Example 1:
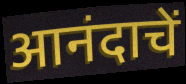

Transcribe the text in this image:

आनंदाचें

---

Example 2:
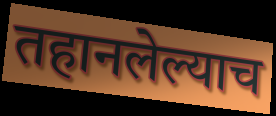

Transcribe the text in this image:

तहानलेल्याच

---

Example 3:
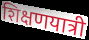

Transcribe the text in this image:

शिक्षणयात्री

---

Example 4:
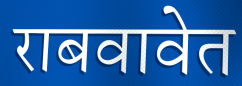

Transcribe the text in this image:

राबवावेत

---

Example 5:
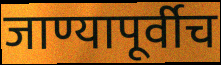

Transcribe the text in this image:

जाण्यापूर्वीच